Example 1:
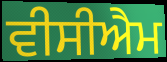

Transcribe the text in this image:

ਵੀਸੀਐਮ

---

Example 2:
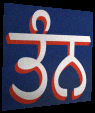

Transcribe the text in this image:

ਤੰਨ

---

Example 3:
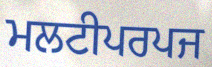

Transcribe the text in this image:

ਮਲਟੀਪਰਪਜ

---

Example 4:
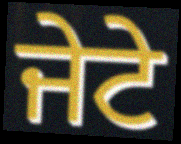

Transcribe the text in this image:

ਜੇਟੇ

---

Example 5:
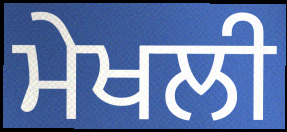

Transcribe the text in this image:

ਮੇਖਲੀ